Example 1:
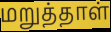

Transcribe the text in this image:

மறுத்தாள்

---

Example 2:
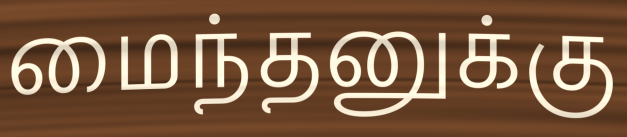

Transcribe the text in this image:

மைந்தனுக்கு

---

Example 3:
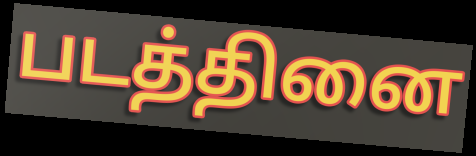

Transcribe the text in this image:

படத்தினை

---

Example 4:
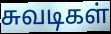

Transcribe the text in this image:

சுவடிகள்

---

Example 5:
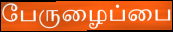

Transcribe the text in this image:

பேருழைப்பை